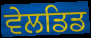
ਵੇਲਡਿਡ